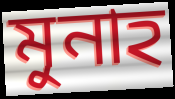
মুনাহ